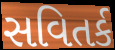
સવિતર્ક